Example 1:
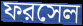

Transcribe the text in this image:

ফরসেল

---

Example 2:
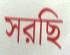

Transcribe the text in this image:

সরছি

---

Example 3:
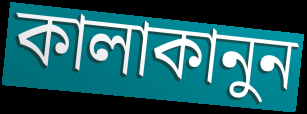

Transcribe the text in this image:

কালাকানুন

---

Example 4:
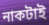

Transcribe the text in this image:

নাকটাই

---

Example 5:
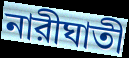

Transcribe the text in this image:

নারীঘাতী